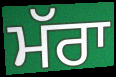
ਮੱਰਾ